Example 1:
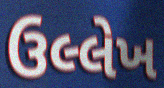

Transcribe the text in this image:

ઉલ્લેખ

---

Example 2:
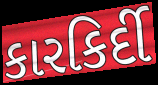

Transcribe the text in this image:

કારકિર્દી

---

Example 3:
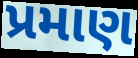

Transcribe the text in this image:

પ્રમાણ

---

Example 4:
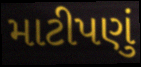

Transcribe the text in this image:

માટીપણું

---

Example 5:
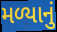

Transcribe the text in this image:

મળ્યાનું